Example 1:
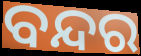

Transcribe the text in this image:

ବନ୍ଦର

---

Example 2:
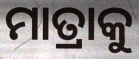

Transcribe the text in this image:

ମାତ୍ରାକୁ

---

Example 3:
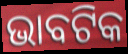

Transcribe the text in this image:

ଭାବଟିକ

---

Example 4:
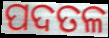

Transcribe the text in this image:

ପଦତଳ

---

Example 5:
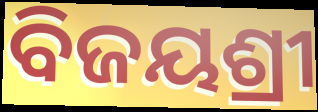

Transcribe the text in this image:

ବିଜୟଶ୍ରୀ